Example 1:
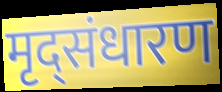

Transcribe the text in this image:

मृद्संधारण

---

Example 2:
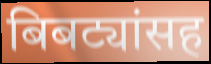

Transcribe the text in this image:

बिबट्यांसह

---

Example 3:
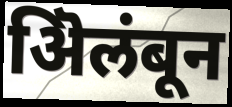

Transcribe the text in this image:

ऄिलंबून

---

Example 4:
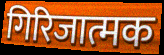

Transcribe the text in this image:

गिरिजात्मक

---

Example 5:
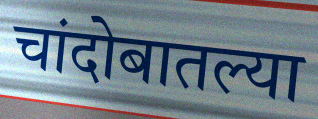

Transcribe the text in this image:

चांदोबातल्या